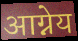
आग्नेय